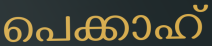
പെക്കാഹ്